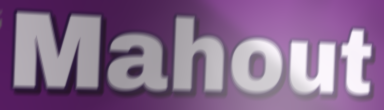
Mahout